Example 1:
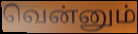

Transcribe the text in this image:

வென்னும்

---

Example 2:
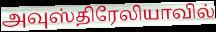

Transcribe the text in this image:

அவுஸ்திரேலியாவில்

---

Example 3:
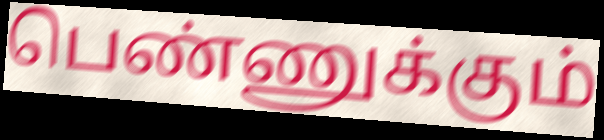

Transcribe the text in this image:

பெண்ணுக்கும்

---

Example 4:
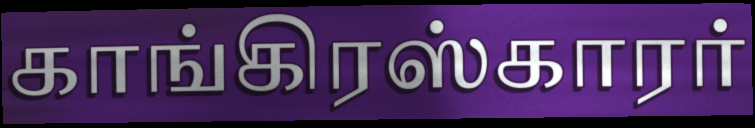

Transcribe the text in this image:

காங்கிரஸ்காரர்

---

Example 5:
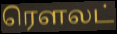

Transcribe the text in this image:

ரௌலட்